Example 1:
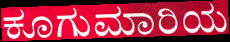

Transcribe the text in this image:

ಕೂಗುಮಾರಿಯ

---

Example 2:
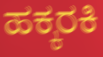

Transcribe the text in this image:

ಹಕ್ಕರಕಿ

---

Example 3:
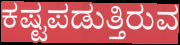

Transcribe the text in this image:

ಕಷ್ಟಪಡುತ್ತಿರುವ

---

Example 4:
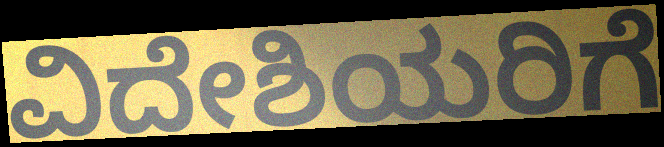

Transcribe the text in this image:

ವಿದೇಶಿಯರಿಗೆ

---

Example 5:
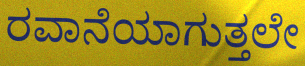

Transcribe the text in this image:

ರವಾನೆಯಾಗುತ್ತಲೇ